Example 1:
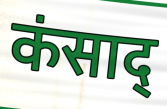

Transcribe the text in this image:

कंसाद्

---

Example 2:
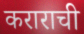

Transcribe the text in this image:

कराराची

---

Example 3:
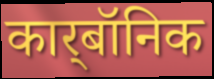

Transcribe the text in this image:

कार्‌बॉनिक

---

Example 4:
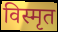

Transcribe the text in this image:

विस्मृत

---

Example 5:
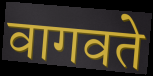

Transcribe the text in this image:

वागवते